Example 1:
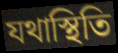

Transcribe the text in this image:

যথাস্থিতি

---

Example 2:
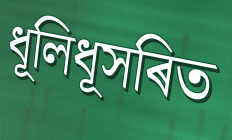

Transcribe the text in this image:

ধূলিধূসৰিত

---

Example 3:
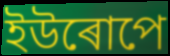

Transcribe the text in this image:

ইউৰোপে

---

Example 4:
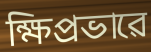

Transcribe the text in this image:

ক্ষিপ্ৰভাৱে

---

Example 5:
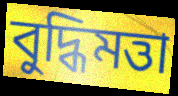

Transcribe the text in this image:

বুদ্ধিমত্তা